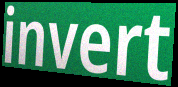
invert